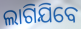
ଲାଗିଯିବେ